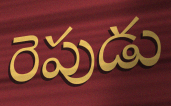
రెపుడు